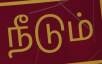
நீடும்